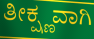
ತೀಕ್ಷ್ಣವಾಗಿ